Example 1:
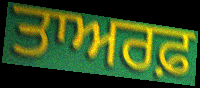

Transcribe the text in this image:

ਤਾਅਰਫ਼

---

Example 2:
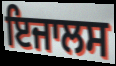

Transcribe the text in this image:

ਇਜਾਲਸ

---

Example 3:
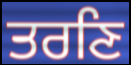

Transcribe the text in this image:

ਤਰਣਿ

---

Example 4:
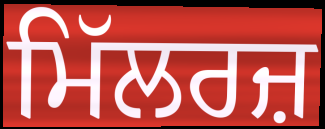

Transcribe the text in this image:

ਮਿੱਲਰਜ਼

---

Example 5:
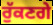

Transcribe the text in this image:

ਰੁੱਕਣਗੇ